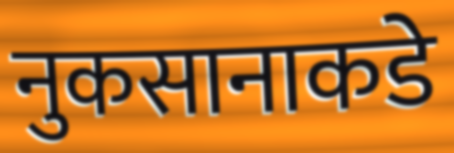
नुकसानाकडे